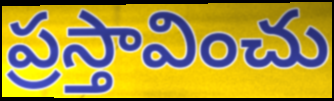
ప్రస్తావించు